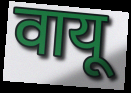
वायू